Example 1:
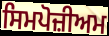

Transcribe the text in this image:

ਸਿਮਪੋਜ਼ੀਅਮ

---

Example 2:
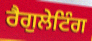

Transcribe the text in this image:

ਰੈਗੁਲੇਟਿੰਗ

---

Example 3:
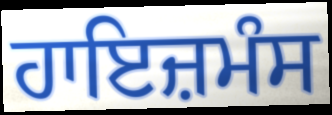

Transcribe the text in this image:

ਹਾਇਜ਼ਮੰਸ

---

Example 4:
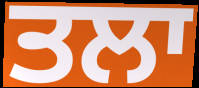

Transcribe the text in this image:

ਤਲਾ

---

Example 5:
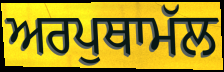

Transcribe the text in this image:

ਅਰਪੁਥਾਮੱਲ